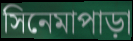
সিনেমাপাড়া